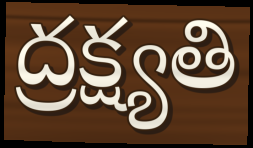
ద్రక్ష్యతి